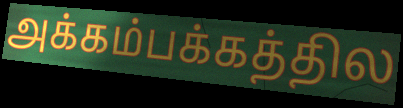
அக்கம்பக்கத்தில